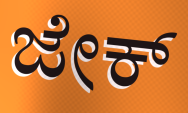
ಜೇಕ್